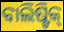
ବାଲିଷ୍ଟିକ୍